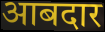
आबदार